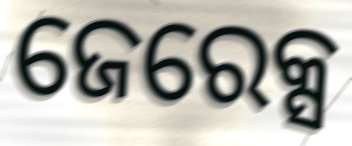
ଜେରେକ୍ସ